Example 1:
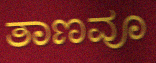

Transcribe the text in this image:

ತಾಣವೂ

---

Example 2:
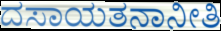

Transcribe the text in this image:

ದಸಾಯತನಾನೀತಿ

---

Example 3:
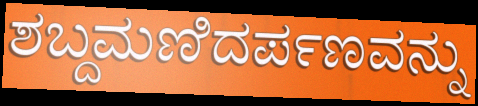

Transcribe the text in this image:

ಶಬ್ದಮಣಿದರ್ಪಣವನ್ನು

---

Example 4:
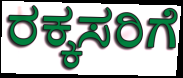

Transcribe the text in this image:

ರಕ್ಕಸರಿಗೆ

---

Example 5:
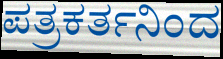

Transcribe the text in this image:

ಪತ್ರಕರ್ತನಿಂದ